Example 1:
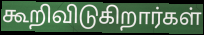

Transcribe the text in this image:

கூறிவிடுகிறார்கள்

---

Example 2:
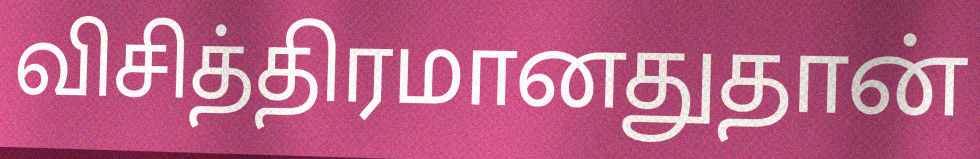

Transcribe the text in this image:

விசித்திரமானதுதான்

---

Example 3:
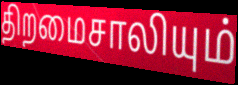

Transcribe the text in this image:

திறமைசாலியும்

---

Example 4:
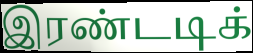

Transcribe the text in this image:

இரண்டடிக்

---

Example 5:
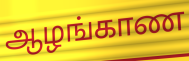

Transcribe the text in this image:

ஆழங்காண